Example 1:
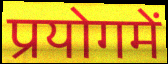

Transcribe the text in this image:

प्रयोगमें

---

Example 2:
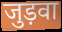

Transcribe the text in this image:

जुड़वा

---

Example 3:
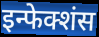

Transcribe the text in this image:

इन्फेक्शंस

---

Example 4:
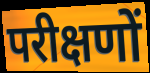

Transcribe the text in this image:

परीक्षणों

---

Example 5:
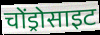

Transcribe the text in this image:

चोंड्रोसाइट